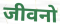
जीवनो